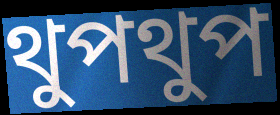
থুপথুপ